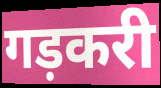
गड़करी